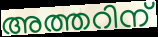
അത്തറിന്